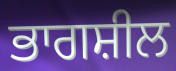
ਭਾਗਸ਼ੀਲ